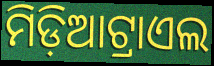
ମିଡ଼ିଆଟ୍ରାଏଲ